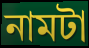
নামটা